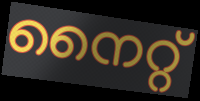
നൈറ്റ്